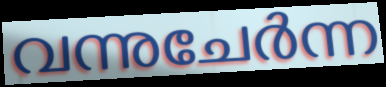
വന്നുചേർന്ന